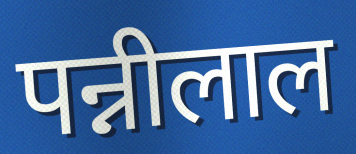
पन्नीलाल